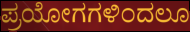
ಪ್ರಯೋಗಗಳಿಂದಲೂ